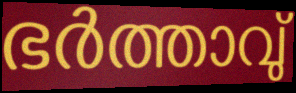
ഭർത്താവു്